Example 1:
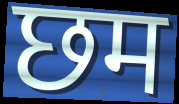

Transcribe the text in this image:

छम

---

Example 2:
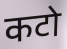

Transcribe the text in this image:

कटो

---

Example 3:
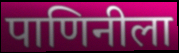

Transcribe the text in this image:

पाणिनीला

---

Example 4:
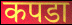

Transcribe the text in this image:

कपडा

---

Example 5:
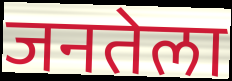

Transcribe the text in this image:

जनतेला